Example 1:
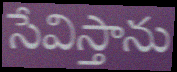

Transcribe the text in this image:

సేవిస్తాను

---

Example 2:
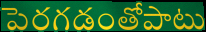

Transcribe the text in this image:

పెరగడంతోపాటు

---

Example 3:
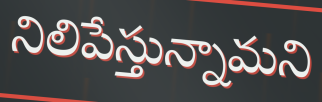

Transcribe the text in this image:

నిలిపేస్తున్నామని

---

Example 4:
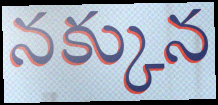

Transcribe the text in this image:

నక్కున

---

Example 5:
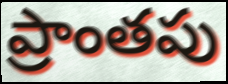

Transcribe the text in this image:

ప్రాంతపు